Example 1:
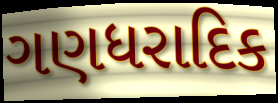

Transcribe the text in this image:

ગણધરાદિક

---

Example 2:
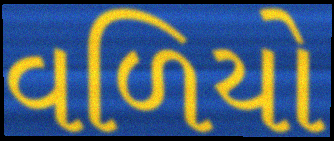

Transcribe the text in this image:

વળિયો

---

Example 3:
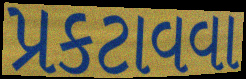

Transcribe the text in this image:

પ્રકટાવવા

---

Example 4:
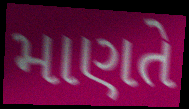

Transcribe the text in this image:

માણતે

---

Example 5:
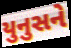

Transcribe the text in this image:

યુનુસને